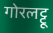
गोरलट्टू